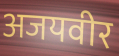
अजयवीर